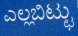
ಎಲ್ಲಬಿಟ್ಟು